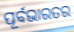
ପୂର୍ବଭାରତର